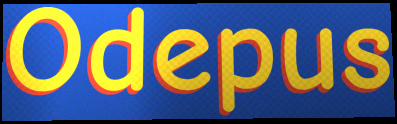
Odepus